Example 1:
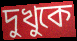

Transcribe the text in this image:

দুখুকে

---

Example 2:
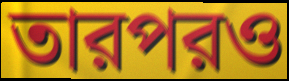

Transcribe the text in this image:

তারপরও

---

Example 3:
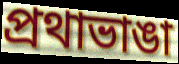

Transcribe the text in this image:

প্রথাভাঙা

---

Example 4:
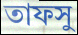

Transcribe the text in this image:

তাফসু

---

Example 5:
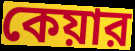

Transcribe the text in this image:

কেয়ার